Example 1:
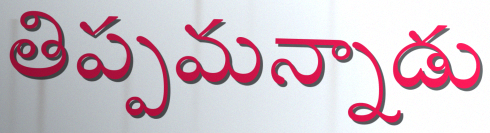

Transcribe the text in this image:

తిప్పమన్నాడు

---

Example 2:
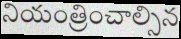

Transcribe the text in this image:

నియంత్రించాల్సిన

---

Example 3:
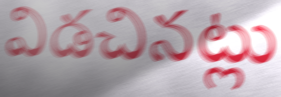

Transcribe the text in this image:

విడచినట్లు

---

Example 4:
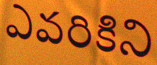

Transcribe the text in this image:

ఎవరికిని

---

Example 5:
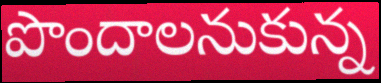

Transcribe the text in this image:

పొందాలనుకున్న